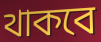
থাকবে